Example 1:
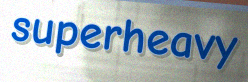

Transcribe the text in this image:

superheavy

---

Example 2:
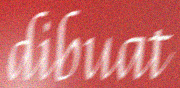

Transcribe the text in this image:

dibuat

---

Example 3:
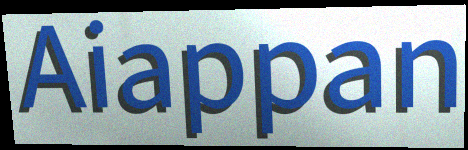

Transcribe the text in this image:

Aiappan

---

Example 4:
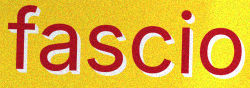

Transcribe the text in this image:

fascio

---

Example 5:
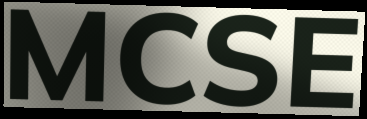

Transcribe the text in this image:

MCSE